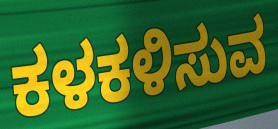
ಕಳಕಳಿಸುವ